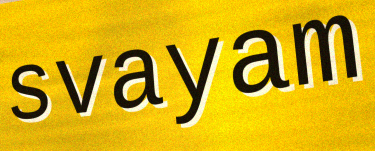
svayam